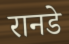
रानडे